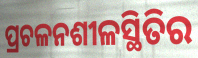
ପ୍ରଚଳନଶୀଳସ୍ଥିତିର